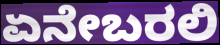
ಏನೇಬರಲಿ